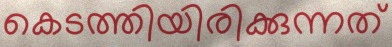
കെടത്തിയിരിക്കുന്നത്